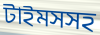
টাইমসসহ